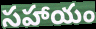
సహాయం